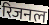
रिजनल